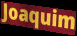
Joaquim